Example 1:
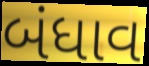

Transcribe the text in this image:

બંધાવ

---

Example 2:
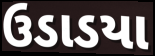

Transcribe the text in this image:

ઉડાડયા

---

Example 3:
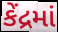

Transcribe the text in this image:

કેંદ્રમાં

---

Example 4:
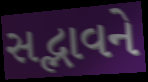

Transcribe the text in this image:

સદ્ભાવને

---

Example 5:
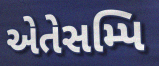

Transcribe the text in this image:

એતેસમ્પિ